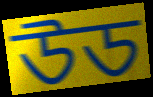
উড